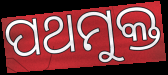
ପଥମୁକ୍ତ